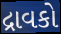
દ્રાવકો